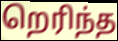
றெரிந்த